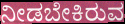
ನೀಡಬೇಕಿರುವ